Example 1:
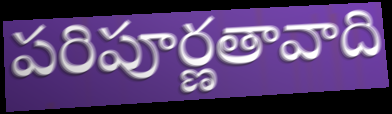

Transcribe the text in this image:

పరిపూర్ణతావాది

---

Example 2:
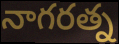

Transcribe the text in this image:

నాగరత్న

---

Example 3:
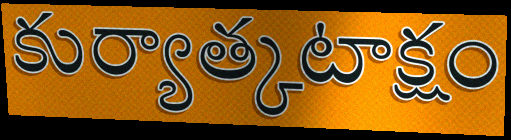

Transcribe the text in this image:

కుర్యాత్కటాక్షం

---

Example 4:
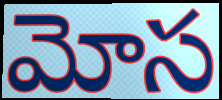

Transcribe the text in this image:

మోస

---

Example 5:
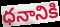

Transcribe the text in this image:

ధనానికి